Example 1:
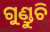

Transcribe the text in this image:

ଗୁଣ୍ଡୁଚି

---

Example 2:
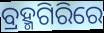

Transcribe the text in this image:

ବ୍ରହ୍ମଗିରିରେ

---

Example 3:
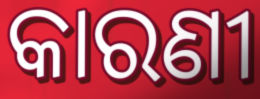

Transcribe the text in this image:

କାରଣୀ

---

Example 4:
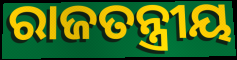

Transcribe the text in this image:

ରାଜତନ୍ତ୍ରୀୟ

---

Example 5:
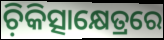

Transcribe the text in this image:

ଚ଼ିକିତ୍ସାକ୍ଷେତ୍ରରେ